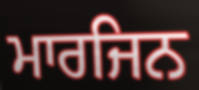
ਮਾਰਜਿਨ